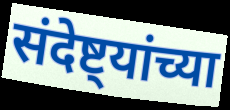
संदेष्ट्यांच्या